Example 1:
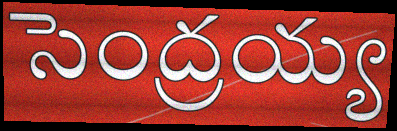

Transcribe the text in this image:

సెంద్రయ్య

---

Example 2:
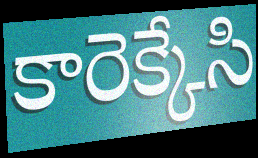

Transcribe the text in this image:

కారెక్కేసి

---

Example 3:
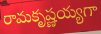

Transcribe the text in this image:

రామకృష్ణయ్యగా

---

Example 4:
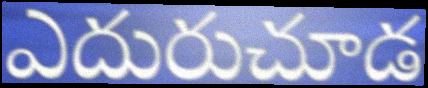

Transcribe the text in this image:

ఎదురుచూడ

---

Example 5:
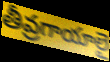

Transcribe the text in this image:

తీవ్రగాయాలై